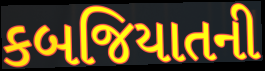
કબજિયાતની